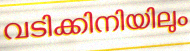
വടിക്കിനിയിലും